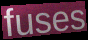
fuses